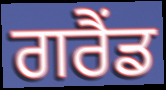
ਗਰੈਂਡ